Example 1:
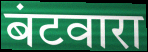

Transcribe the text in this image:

बंटवारा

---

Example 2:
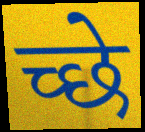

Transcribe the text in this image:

च्छे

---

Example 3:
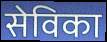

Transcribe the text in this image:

सेविका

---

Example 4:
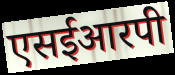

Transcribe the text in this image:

एसईआरपी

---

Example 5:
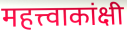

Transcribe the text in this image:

महत्त्वाकांक्षी